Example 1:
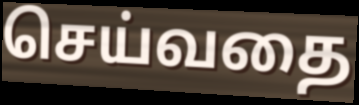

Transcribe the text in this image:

செய்வதை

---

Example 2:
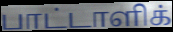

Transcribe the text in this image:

பாட்டாளிக்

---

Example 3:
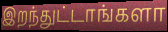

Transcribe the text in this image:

இறந்துட்டாங்களா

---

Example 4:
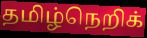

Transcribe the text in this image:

தமிழ்நெறிக்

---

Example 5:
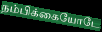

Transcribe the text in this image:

நம்பிக்கையோடே